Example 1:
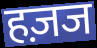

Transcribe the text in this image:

हज़ज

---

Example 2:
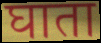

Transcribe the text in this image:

घाता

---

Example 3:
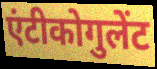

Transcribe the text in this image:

एंटीकोगुलेंट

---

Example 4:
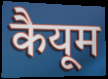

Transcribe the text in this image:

कैयूम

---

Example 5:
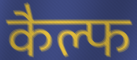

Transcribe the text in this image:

कैल्फ